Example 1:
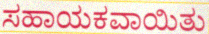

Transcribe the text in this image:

ಸಹಾಯಕವಾಯಿತು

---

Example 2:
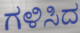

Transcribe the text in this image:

ಗಳಿಸಿದ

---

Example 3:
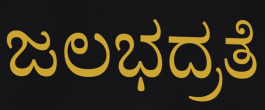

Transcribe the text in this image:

ಜಲಭದ್ರತೆ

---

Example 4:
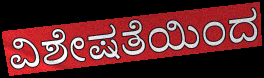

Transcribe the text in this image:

ವಿಶೇಷತೆಯಿಂದ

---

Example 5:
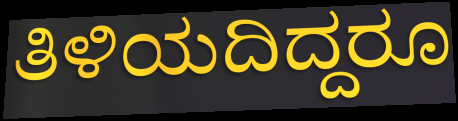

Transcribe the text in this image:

ತಿಳಿಯದಿದ್ದರೂ